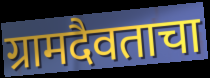
ग्रामदैवताचा